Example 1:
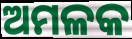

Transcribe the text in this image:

ଅମଳକ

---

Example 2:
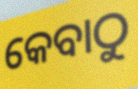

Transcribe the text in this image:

କେବାଠୁ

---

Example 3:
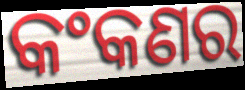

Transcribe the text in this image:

କଂକଣର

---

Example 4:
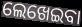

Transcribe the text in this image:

ଲେଖେଇବା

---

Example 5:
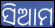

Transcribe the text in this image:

ସିଆମ